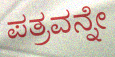
ಪತ್ರವನ್ನೇ